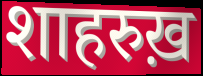
शाहरुख़